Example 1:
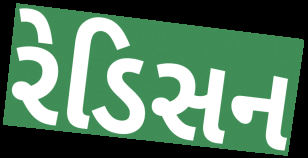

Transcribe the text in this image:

રેડિસન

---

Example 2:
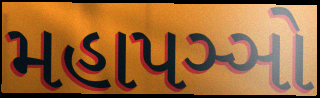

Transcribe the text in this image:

મહાપઞ્ઞો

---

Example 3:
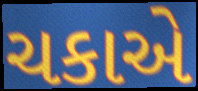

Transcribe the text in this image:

ચકાએ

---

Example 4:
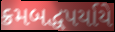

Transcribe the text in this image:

ક્રમબદ્ધપર્યાયે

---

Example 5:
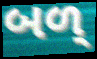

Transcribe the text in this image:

બળ્